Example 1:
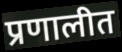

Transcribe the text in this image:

प्रणालीत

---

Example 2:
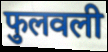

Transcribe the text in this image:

फुलवली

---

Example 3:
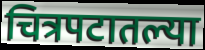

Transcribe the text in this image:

चित्रपटातल्या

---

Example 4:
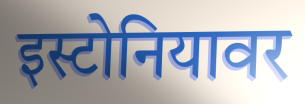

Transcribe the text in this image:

इस्टोनियावर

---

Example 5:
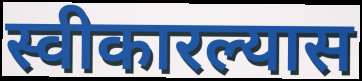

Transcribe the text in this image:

स्वीकारल्यास